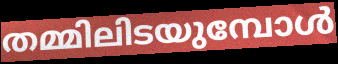
തമ്മിലിടയുമ്പോൾ